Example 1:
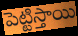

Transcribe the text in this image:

పెట్టిస్తాయి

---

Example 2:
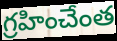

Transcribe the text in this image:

గ్రహించేంత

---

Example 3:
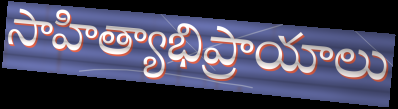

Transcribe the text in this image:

సాహిత్యాభిప్రాయాలు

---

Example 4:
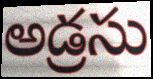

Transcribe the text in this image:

అడ్రసు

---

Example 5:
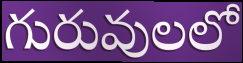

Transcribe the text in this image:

గురువులలో